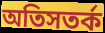
অতিসতর্ক